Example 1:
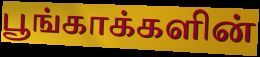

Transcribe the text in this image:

பூங்காக்களின்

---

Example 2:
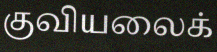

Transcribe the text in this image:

குவியலைக்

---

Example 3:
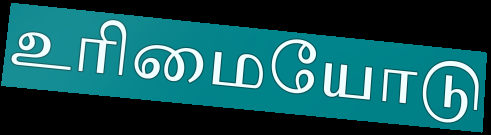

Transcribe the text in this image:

உரிமையோடு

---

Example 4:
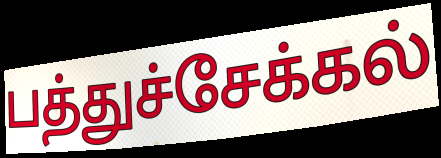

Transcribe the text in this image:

பத்துச்சேக்கல்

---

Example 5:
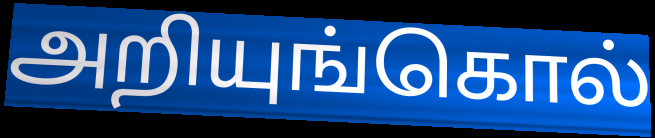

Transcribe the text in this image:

அறியுங்கொல்